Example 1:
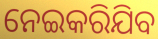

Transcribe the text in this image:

ନେଇକରିଯିବ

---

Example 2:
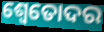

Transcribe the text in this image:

ଶ୍ୱେତୋଦର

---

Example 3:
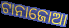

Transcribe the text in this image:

ଟାନାଜୋଆ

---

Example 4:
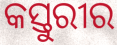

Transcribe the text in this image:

କସ୍ତୁରୀର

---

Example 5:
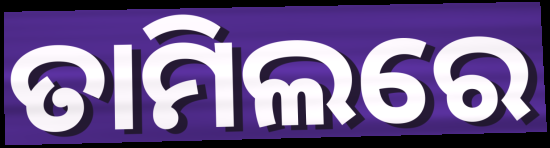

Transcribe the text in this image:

ତାମିଲରେ